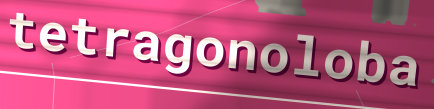
tetragonoloba